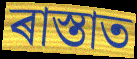
ৰাস্তাত